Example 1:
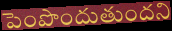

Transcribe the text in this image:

పెంపొందుతుందని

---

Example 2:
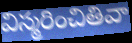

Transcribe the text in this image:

విస్మరించితివా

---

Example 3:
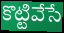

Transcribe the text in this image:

కొట్టివేసే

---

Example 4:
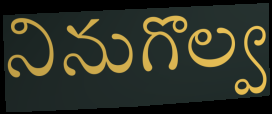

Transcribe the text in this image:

నినుగొల్వ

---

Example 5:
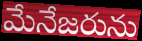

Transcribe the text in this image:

మేనేజరును